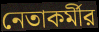
নেতাকর্মীর